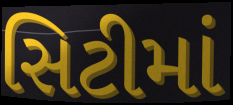
સિટીમાં